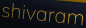
shivaram